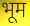
भूम